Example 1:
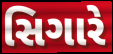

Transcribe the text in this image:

સિગારે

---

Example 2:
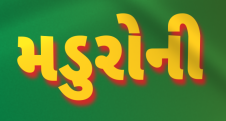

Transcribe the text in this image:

મડુરોની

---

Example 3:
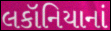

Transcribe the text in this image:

લકૉનિયાનાં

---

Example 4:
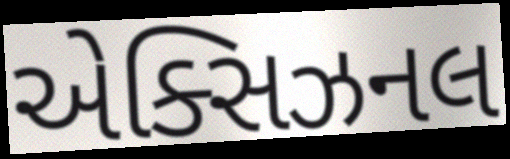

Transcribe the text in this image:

એક્સિઝનલ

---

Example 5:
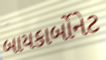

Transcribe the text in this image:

બાયકાર્બોનેટ